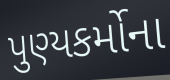
પુણ્યકર્મોના